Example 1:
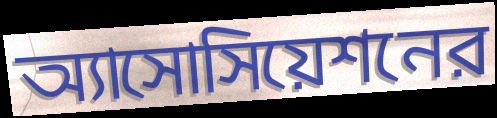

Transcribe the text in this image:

অ্যাসোসিয়েশনের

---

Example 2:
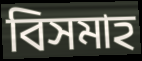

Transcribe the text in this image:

বিসমাহ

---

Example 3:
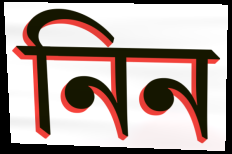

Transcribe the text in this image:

নিন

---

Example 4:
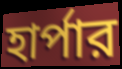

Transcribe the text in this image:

হার্পার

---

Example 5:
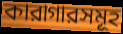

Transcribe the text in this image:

কারাগারসমূহ